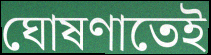
ঘোষণাতেই